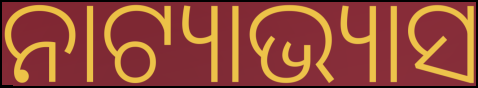
ନାଟ୍ୟାଭ୍ୟାସ